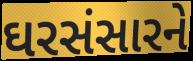
ઘરસંસારને